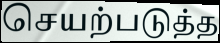
செயற்படுத்த